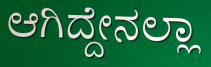
ಆಗಿದ್ದೇನಲ್ಲಾ